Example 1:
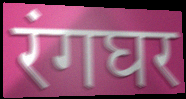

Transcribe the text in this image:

रंगघर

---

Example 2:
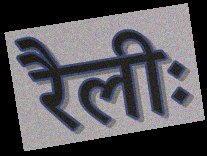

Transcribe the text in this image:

रैलीः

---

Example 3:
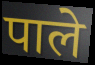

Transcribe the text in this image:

पाले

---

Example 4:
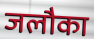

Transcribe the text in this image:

जलौका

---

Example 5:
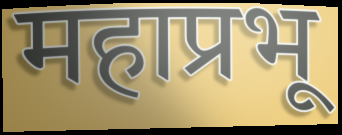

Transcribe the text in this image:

महाप्रभू